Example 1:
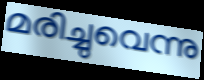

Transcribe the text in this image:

മരിച്ചുവെന്നു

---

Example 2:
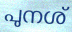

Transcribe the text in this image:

പുനശ്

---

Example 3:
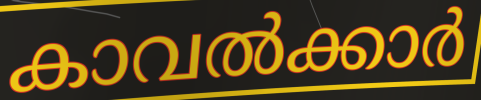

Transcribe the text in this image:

കാവൽക്കാർ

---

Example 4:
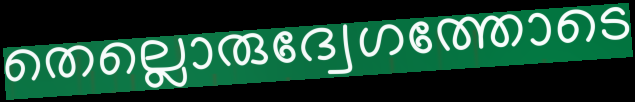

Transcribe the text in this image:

തെല്ലൊരുദ്വേഗത്തോടെ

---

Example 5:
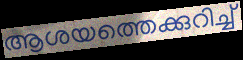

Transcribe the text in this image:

ആശയത്തെക്കുറിച്ച്